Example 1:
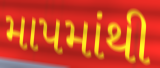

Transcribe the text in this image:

માપમાંથી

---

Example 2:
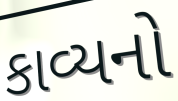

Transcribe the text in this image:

કાવ્યનો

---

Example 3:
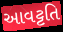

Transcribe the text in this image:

આવટ્ટતિ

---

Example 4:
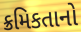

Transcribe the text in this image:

ક્રમિકતાનો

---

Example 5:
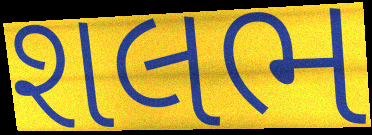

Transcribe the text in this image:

શલભ